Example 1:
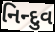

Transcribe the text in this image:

નિન્દુવ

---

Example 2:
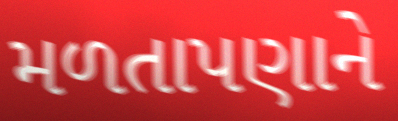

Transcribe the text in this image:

મળતાપણાને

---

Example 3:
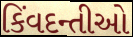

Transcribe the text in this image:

કિંવદન્તીઓ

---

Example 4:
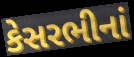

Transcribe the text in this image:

કેસરભીનાં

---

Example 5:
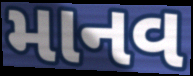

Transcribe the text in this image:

માનવ